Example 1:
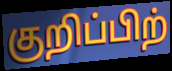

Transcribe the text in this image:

குறிப்பிற்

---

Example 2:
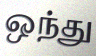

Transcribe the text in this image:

ஒந்து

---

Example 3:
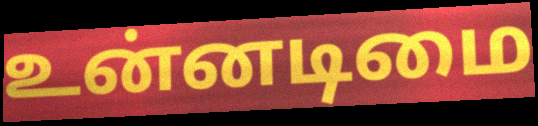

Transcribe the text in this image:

உன்னடிமை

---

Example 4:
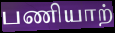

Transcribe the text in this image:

பணியாற்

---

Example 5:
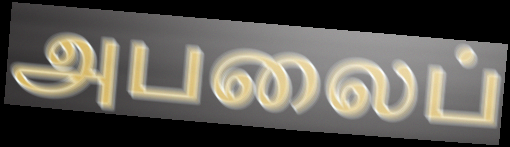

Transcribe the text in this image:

அபலைப்